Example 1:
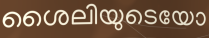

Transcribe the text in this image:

ശൈലിയുടെയോ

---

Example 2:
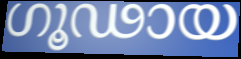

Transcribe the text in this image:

ഗൂഢായ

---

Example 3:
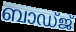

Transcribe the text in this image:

ബാഡ്ജ്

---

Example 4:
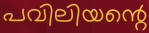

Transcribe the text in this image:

പവിലിയന്റെ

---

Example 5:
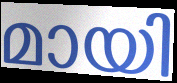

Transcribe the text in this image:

മായി